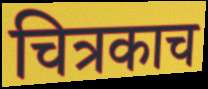
चित्रकाच